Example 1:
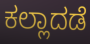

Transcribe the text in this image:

ಕಲ್ಲಾದಡೆ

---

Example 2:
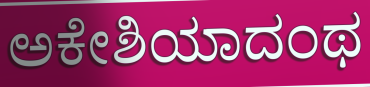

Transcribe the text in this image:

ಅಕೇಶಿಯಾದಂಥ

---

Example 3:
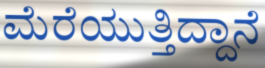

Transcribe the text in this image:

ಮೆರೆಯುತ್ತಿದ್ದಾನೆ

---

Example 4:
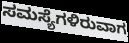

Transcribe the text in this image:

ಸಮಸ್ಯೆಗಳಿರುವಾಗ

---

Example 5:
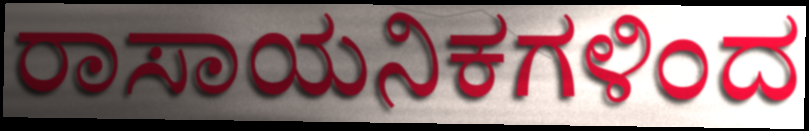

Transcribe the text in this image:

ರಾಸಾಯನಿಕಗಳಿಂದ